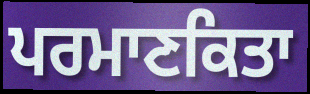
ਪਰਮਾਣਕਿਤਾ